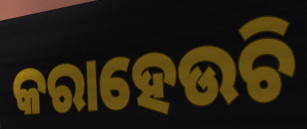
କରାହେଉଚି